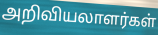
அறிவியலாளர்கள்